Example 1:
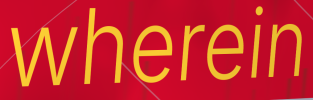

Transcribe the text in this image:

wherein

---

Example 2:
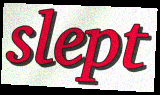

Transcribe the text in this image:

slept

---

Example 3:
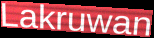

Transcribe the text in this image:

Lakruwan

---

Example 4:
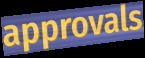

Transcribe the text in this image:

approvals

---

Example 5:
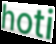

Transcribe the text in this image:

hoti